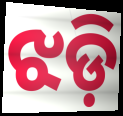
ଝଡ଼ି